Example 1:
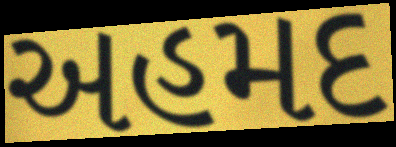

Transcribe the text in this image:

અહમદ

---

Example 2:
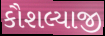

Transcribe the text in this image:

કૌશલ્યાજી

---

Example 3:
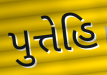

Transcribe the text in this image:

પુત્તેહિ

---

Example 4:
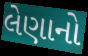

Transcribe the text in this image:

લેણાનો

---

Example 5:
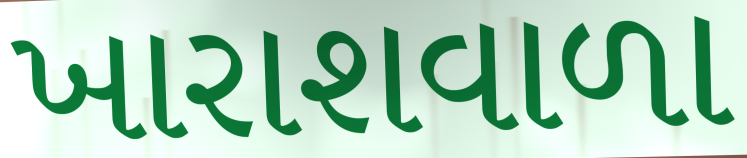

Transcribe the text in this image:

ખારાશવાળા